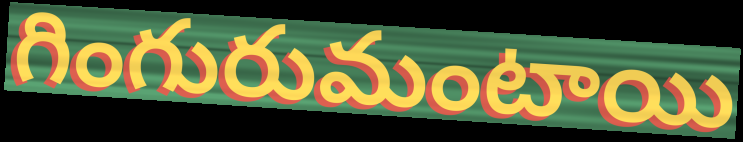
గింగురుమంటాయి